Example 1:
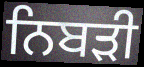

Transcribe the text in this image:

ਨਿਬੜੀ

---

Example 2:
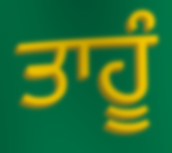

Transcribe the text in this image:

ਤਾਹੂੰ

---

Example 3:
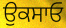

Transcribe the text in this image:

ਉਕਸਾਓ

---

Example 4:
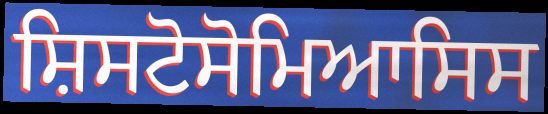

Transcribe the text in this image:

ਸ਼ਿਸਟੋਸੋਮਿਆਸਿਸ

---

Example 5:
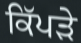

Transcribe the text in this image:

ਕਿੱਪੜੇ